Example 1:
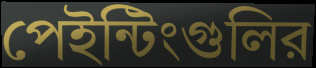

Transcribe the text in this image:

পেইন্টিংগুলির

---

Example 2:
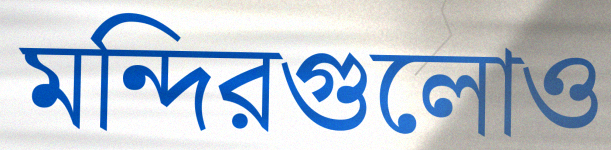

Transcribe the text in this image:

মন্দিরগুলোও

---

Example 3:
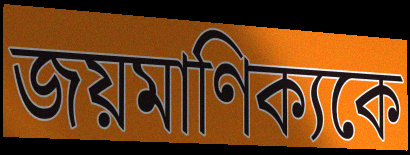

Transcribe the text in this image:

জয়মাণিক্যকে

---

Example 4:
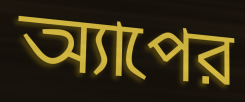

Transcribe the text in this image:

অ্যাপের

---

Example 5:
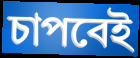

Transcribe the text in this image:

চাপবেই